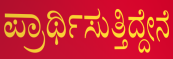
ಪ್ರಾರ್ಥಿಸುತ್ತಿದ್ದೇನೆ